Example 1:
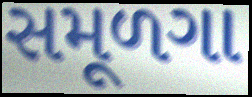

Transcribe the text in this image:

સમૂળગા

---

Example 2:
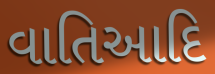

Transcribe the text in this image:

વાતિઆદિ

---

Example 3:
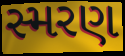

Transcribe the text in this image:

સ્‍મરણ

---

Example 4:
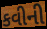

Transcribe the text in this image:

કવીની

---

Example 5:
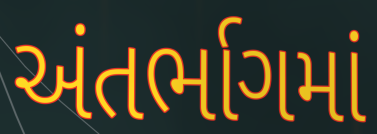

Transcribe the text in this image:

અંતર્ભાગમાં